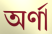
অর্ণা